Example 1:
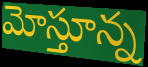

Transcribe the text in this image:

మోస్తూన్న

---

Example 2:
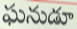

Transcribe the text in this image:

ఘనుడూ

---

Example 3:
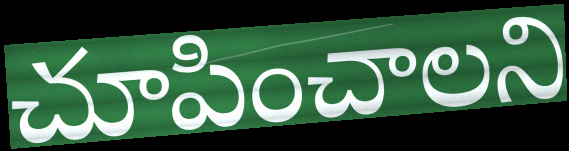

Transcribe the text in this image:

చూపించాలని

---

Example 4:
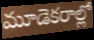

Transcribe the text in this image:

మూడెకరాల్లో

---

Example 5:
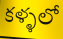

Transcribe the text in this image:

కళ్ళలో